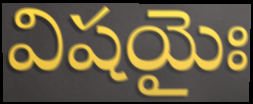
విషయైః